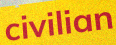
civilian